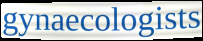
gynaecologists